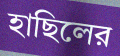
হাছিলের